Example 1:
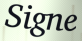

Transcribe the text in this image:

Signe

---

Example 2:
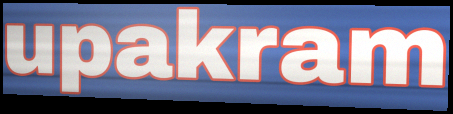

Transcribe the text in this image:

upakram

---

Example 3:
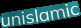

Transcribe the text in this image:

unislamic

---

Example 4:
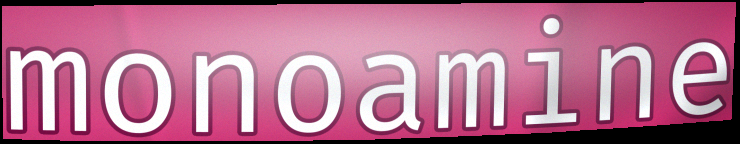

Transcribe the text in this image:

monoamine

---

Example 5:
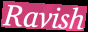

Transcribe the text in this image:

Ravish